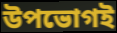
উপভোগই